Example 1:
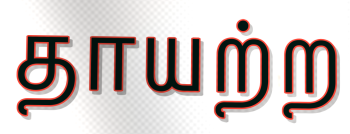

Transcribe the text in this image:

தாயற்ற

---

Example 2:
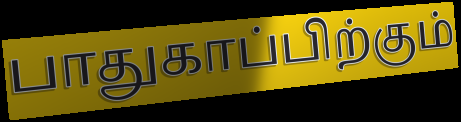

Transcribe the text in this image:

பாதுகாப்பிற்கும்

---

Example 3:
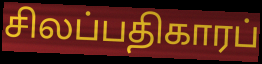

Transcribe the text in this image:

சிலப்பதிகாரப்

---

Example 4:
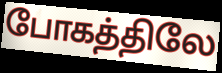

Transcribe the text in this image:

போகத்திலே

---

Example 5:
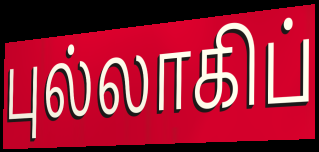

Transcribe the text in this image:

புல்லாகிப்